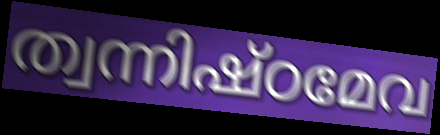
ത്വന്നിഷ്ഠമേവ